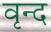
वृन्द